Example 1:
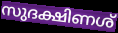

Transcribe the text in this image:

സുദക്ഷിണശ്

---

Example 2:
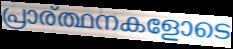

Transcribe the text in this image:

പ്രാര്ത്ഥനകളോടെ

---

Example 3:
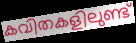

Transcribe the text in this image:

കവിതകളിലുണ്ട്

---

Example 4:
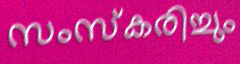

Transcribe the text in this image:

സംസ്കരിച്ചും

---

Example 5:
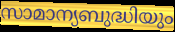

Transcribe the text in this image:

സാമാന്യബുദ്ധിയും